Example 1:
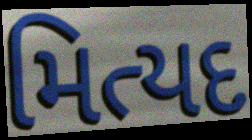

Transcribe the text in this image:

મિત્યદ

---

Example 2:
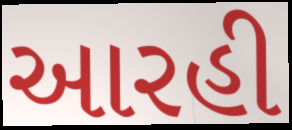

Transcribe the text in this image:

આરહી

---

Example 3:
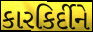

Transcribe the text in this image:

કારકિર્દીને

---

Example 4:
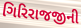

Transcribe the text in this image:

ગિરિરાજજીની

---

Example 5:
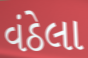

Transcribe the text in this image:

વંઠેલા